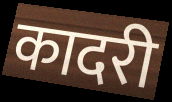
कादरी